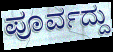
ಪೂರ್ವದ್ದು